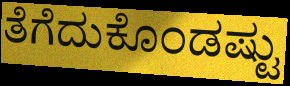
ತೆಗೆದುಕೊಂಡಷ್ಟು